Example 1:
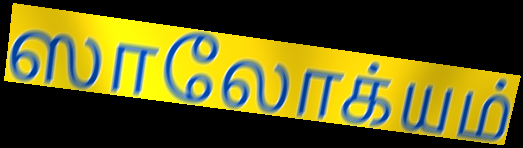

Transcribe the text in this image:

ஸாலோக்யம்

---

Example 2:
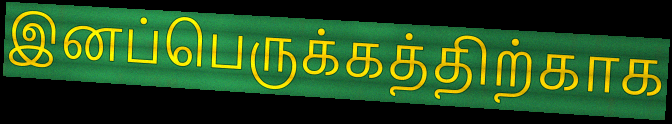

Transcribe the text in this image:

இனப்பெருக்கத்திற்காக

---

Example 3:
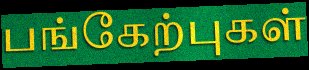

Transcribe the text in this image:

பங்கேற்புகள்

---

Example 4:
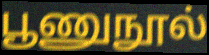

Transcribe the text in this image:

பூணுநூல்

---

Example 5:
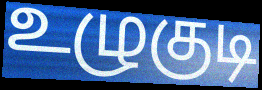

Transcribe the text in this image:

உழுகுடி